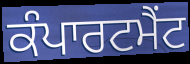
ਕੰਪਾਰਟਮੈਂਟ